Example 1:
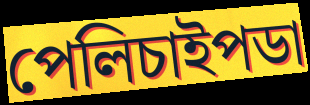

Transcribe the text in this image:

পেলিচাইপডা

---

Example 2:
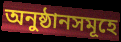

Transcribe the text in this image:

অনুষ্ঠানসমূহে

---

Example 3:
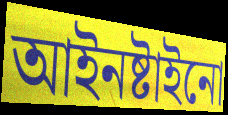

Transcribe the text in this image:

আইনষ্টাইনো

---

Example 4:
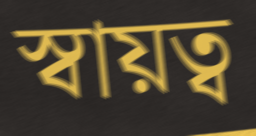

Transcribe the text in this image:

স্বায়ত্ব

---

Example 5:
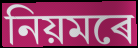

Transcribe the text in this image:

নিয়মৰে